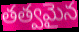
తత్వమైన